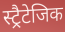
स्ट्रैटेजिक